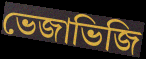
ভেজাভিজি